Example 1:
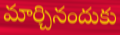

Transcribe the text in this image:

మార్చినందుకు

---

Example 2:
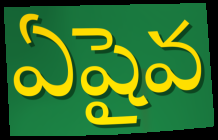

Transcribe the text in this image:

ఏషైవ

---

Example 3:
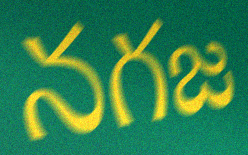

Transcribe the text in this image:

నగజ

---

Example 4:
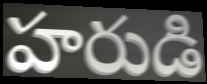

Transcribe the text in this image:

హరుడి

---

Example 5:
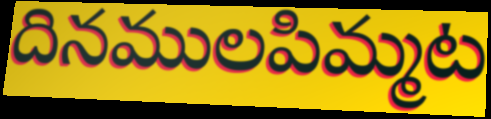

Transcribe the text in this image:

దినములపిమ్మట